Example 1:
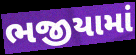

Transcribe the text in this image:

ભજીયામાં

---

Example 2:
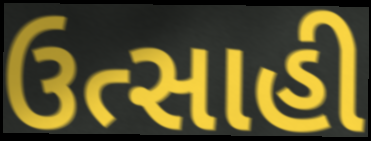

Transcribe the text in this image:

ઉત્સાહી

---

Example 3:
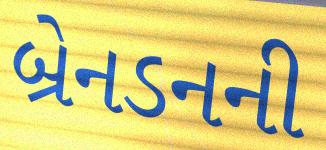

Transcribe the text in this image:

બ્રેનડનની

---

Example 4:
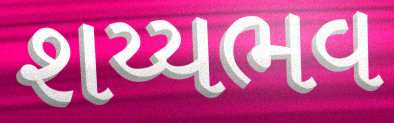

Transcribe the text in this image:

શય્યભવ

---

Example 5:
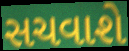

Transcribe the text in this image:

સચવાશે